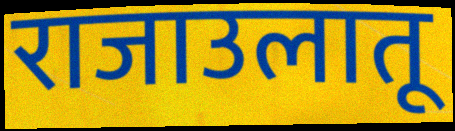
राजाउलातू